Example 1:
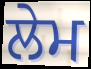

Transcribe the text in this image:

ਲੇਮ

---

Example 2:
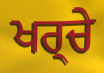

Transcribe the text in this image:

ਖਰ੍ਚੇ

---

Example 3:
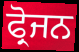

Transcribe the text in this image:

ਫ੍ਰੋਜਨ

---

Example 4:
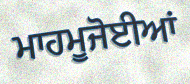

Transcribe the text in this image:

ਮਾਹਮੂਜੋਈਆਂ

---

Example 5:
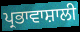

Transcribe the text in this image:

ਪ੍ਰਭਾਵਾਸ਼ਾਲੀ